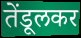
तेंडूलकर